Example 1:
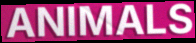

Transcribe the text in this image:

ANIMALS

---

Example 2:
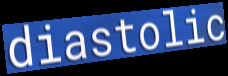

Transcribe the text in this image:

diastolic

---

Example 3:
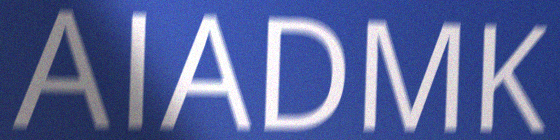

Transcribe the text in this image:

AIADMK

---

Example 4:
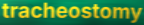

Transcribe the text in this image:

tracheostomy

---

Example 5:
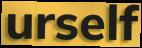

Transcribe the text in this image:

urself